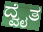
ದ್ವೈತ